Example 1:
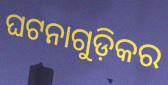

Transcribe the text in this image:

ଘଟନାଗୁଡ଼ିକର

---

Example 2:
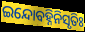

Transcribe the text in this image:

ଇନ୍ଦୋବହ୍ନିନିସୃତିଃ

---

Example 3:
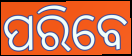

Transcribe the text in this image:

ପରିବେ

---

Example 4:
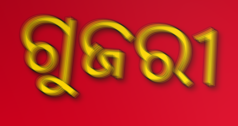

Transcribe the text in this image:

ଗୁଜରୀ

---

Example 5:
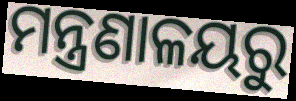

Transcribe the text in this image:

ମନ୍ତ୍ରଣାଳୟରୁ